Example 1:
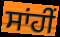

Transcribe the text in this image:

ਸਾਂਹੀਂ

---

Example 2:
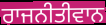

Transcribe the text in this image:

ਰਾਜਨੀਤੀਵਾਨ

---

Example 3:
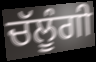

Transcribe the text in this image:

ਚੱਲੂੰਗੀ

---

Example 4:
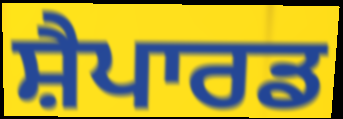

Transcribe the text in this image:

ਸ਼ੈਪਾਰਡ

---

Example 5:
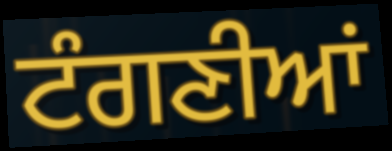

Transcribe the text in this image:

ਟੰਗਣੀਆਂ